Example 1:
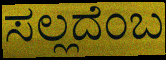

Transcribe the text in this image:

ಸಲ್ಲದೆಂಬ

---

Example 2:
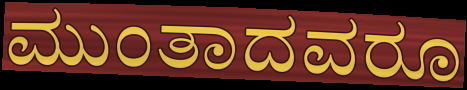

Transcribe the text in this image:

ಮುಂತಾದವರೂ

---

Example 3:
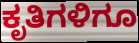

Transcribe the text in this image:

ಕೃತಿಗಳಿಗೂ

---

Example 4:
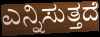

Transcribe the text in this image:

ಎನ್ನಿಸುತ್ತದೆ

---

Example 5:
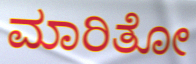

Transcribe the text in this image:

ಮಾರಿತೋ